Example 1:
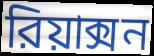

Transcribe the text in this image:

রিয়াক্সন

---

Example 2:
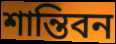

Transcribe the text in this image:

শান্তিবন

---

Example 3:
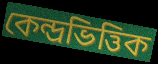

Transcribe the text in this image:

কেন্দ্রভিত্তিক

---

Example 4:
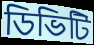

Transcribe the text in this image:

ডিভিটি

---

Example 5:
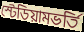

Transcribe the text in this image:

স্টেডিয়ামভর্তি